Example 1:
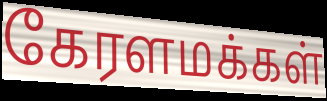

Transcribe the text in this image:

கேரளமக்கள்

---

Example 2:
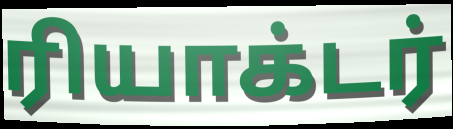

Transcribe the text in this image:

ரியாக்டர்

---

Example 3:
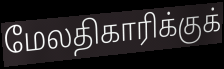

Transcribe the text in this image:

மேலதிகாரிக்குக்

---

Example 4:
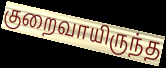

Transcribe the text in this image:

குறைவாயிருந்த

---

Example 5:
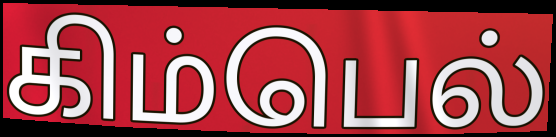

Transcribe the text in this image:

கிம்பெல்